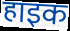
हाइक